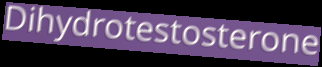
Dihydrotestosterone